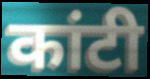
कांटी